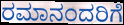
ರಮಾನಂದರಿಗೆ